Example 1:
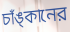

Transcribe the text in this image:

চাঁঙ্‌কানের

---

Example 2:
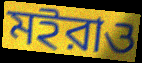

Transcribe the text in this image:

মইরাও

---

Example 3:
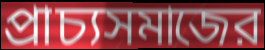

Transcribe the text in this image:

প্রাচ্যসমাজের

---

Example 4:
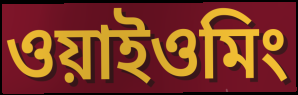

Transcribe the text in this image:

ওয়াইওমিং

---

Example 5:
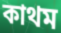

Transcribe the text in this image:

কাথম